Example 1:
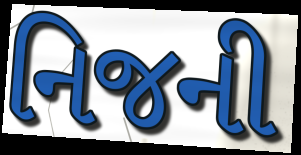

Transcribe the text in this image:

નિજની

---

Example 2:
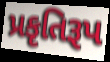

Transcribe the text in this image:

પ્રકૃતિરૂપ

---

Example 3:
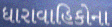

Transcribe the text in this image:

ધારાવાહિકોના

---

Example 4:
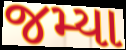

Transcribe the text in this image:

જમ્યા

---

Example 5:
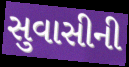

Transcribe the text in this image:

સુવાસીની